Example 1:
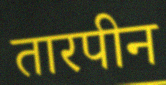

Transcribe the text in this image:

तारपीन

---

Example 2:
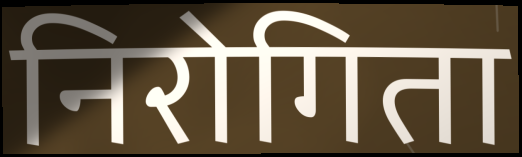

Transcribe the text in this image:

निरोगिता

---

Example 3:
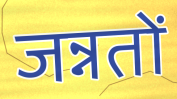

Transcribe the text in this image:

जन्नतों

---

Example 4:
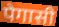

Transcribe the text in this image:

पेगासी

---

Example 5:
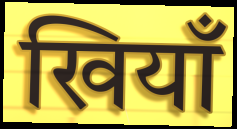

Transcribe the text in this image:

खियाँ